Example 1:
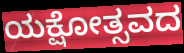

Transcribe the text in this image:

ಯಕ್ಷೋತ್ಸವದ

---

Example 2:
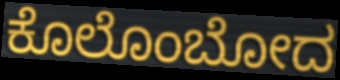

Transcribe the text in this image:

ಕೊಲೊಂಬೋದ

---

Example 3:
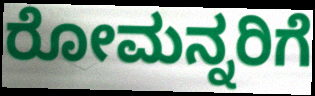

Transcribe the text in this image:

ರೋಮನ್ನರಿಗೆ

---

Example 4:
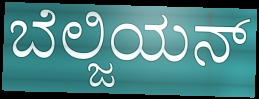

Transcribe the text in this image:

ಬೆಲ್ಜಿಯನ್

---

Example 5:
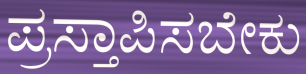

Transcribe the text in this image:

ಪ್ರಸ್ತಾಪಿಸಬೇಕು